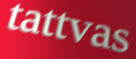
tattvas